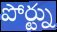
పోర్ట్ను